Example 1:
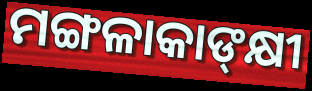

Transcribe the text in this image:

ମଙ୍ଗଳାକାଙ୍‍କ୍ଷୀ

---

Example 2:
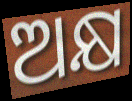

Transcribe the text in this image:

ଅକ୍ଷ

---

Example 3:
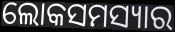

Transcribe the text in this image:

ଲୋକସମସ୍ୟାର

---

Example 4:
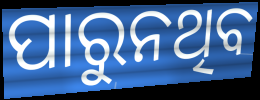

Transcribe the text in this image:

ପାରୁନଥିବ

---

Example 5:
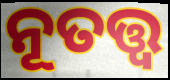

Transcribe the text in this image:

ନୂତତ୍ତ୍ଵ